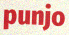
punjo